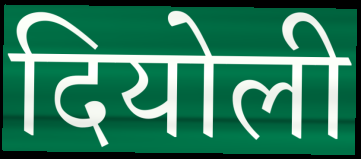
दियोली